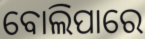
ବୋଲିପାରେ